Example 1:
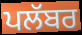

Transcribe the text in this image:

ਪਲੱਬਰ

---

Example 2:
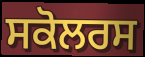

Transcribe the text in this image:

ਸਕੋਲਰਸ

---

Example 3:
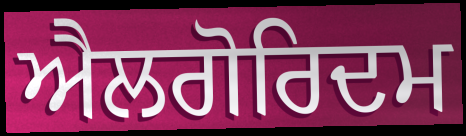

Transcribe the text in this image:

ਐਲਗੋਰਿਦਮ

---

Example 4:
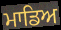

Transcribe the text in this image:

ਮਾਡਿਅ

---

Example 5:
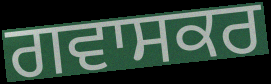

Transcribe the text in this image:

ਗਵਾਸਕਰ